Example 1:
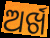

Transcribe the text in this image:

ଅର୍ଖ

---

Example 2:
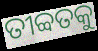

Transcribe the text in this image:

ତୀବ୍ବତକୁ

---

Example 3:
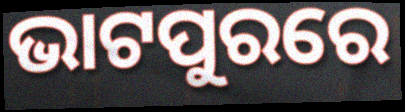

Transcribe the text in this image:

ଭାଟପୁରରେ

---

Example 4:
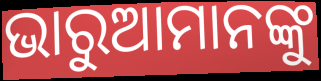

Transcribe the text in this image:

ଭାରୁଆମାନଙ୍କୁ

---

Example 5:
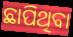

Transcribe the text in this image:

ଛାପିଥିବା